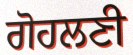
ਗੋਹਲਣੀ